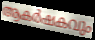
ആകർഷകവും